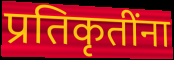
प्रतिकृतींना